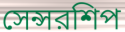
সেন্সরশিপ